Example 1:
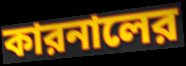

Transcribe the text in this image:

কারনালের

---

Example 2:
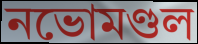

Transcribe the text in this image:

নভোমণ্ডল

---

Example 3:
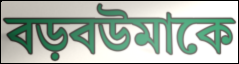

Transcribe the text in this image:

বড়বউমাকে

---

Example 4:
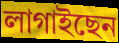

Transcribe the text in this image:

লাগাইছেন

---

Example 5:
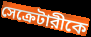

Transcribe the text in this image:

সেক্রেটারীকে